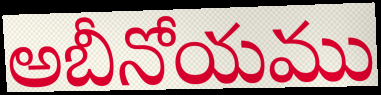
అబీనోయము